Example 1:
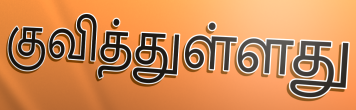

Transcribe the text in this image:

குவித்துள்ளது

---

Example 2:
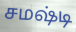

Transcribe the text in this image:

சமஷ்டி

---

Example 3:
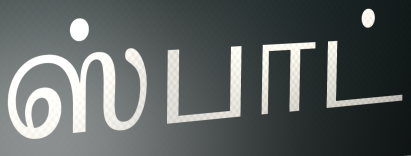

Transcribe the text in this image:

ஸ்பாட்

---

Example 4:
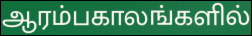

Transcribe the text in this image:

ஆரம்பகாலங்களில்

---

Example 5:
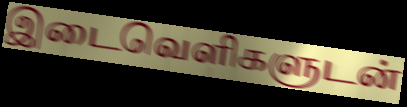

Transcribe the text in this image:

இடைவெளிகளுடன்